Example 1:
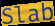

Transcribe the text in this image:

Slab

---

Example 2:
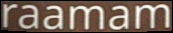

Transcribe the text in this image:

raamam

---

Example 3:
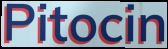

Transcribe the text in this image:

Pitocin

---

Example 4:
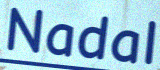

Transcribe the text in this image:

Nadal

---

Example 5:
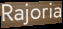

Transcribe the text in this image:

Rajoria